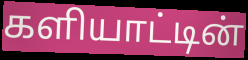
களியாட்டின்